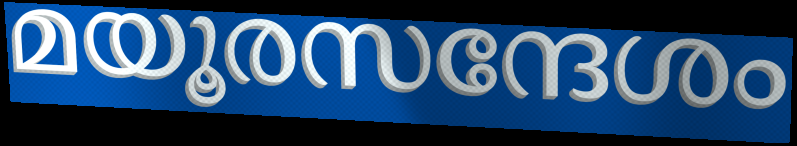
മയൂരസന്ദേശം